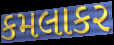
કમલાકર